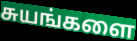
சுயங்களை